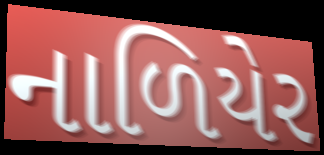
નાળિયેર